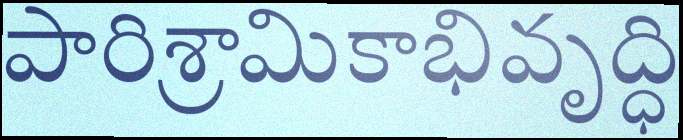
పారిశ్రామికాభివృద్ధి